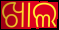
ଖାଲ